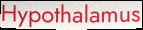
Hypothalamus